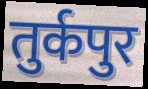
तुर्कपुर